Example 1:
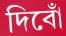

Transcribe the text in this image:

দিবোঁ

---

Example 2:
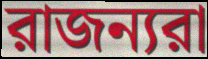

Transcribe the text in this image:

রাজন্যরা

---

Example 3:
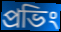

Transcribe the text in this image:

প্রভিং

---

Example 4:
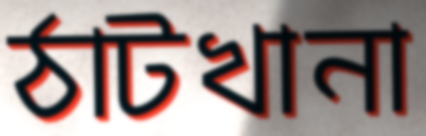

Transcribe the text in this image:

ঠাটখানা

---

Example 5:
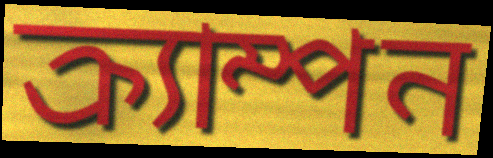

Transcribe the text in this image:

ক্র্যাম্পন